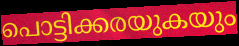
പൊട്ടിക്കരയുകയും